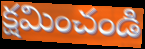
క్షమించండి